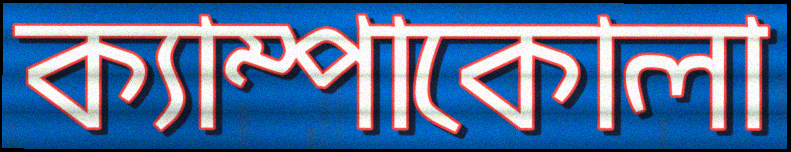
ক্যাম্পাকোলা